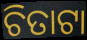
ଚିତାଟା